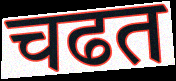
चढत